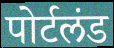
पोर्टलंड